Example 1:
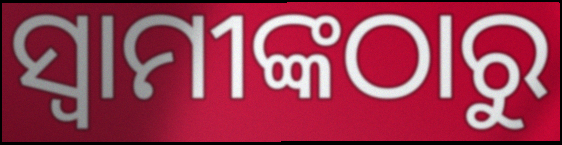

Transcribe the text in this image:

ସ୍ବାମୀଙ୍କଠାରୁ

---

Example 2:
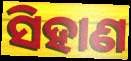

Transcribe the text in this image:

ସିହାଣ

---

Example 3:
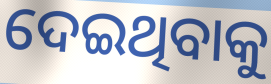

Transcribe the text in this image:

ଦେଇଥିବାକୁ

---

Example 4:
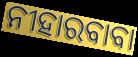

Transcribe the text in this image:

ନୀହାରବାବା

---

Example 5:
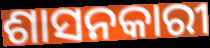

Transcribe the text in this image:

ଶାସନକାରୀ